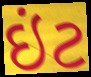
ઇંટ